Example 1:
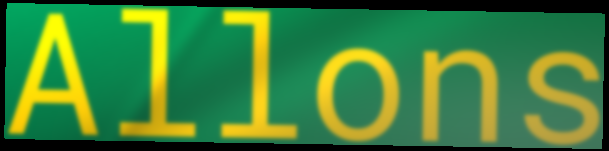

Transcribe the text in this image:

Allons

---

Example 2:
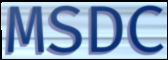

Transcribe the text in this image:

MSDC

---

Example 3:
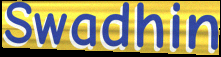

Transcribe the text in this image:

Swadhin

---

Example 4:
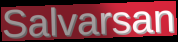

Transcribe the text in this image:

Salvarsan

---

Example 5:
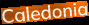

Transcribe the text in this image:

Caledonia